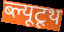
ब्ल्यूटूथ